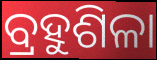
ବ୍ରହୁଶିଳା